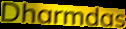
Dharmdas